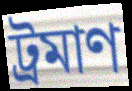
ট্রমাণ